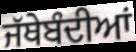
ਜੱਥੇਬੰਦੀਆਂ